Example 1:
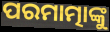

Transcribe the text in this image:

ପରମାତ୍ମାଙ୍କୁ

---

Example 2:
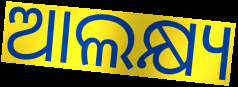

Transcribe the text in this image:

ଆଲକ୍ଷ୍ୟ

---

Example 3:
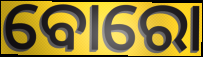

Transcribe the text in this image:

ବୋରୋ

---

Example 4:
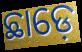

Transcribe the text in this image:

ଛାଡ଼େ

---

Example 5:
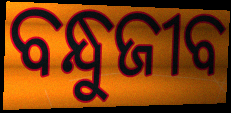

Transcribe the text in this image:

ବନ୍ଧୁଜୀବ